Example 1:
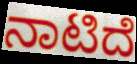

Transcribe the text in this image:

ನಾಟಿದೆ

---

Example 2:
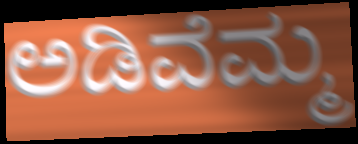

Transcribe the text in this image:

ಅಡಿವೆಮ್ಮ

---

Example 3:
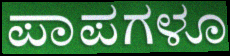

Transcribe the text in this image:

ಪಾಪಗಳೂ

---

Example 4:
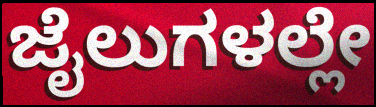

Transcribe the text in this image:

ಜೈಲುಗಳಲ್ಲೇ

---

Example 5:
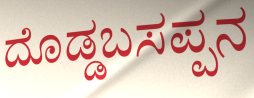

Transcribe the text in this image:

ದೊಡ್ಡಬಸಪ್ಪನ